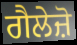
ਗੈਲੇਜ਼ੋ